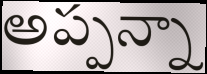
అప్పన్నా